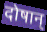
दोषान्